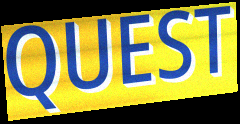
QUEST